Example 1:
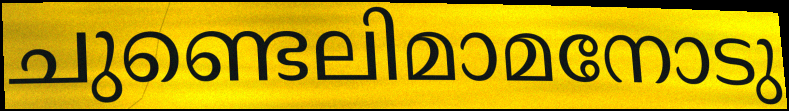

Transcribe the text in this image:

ചുണ്ടെലിമാമനോടു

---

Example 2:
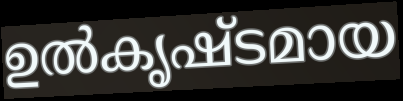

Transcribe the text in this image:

ഉൽകൃഷ്ടമായ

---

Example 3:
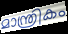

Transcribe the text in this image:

മാന്ത്രികം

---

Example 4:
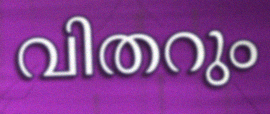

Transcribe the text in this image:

വിതറും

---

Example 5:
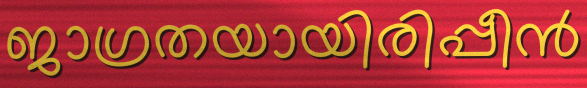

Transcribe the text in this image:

ജാഗ്രതയായിരിപ്പീൻ